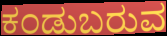
ಕಂಡುಬರುವ